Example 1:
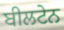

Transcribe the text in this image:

ਬੀਲਟੇਨ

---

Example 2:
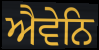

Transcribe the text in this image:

ਐਵੇਨਿ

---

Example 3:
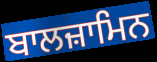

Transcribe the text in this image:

ਬਾਲਜ਼ਾਮਿਨ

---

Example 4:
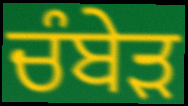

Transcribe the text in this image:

ਚੰਬੇੜ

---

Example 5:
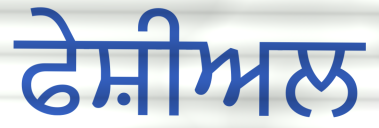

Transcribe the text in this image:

ਫੇਸ਼ੀਅਲ